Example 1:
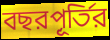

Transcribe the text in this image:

বছরপূর্তির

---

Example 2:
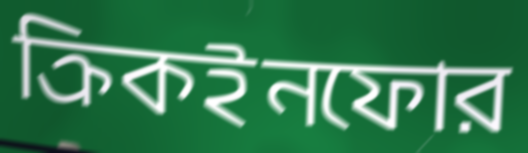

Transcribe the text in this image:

ক্রিকইনফোর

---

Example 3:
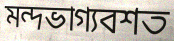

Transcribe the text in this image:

মন্দভাগ্যবশত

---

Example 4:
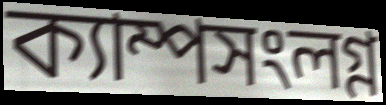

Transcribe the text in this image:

ক্যাম্পসংলগ্ন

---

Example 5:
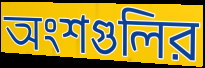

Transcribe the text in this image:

অংশগুলির